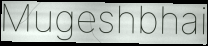
Mugeshbhai